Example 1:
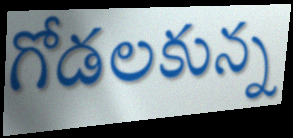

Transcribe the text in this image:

గోడలకున్న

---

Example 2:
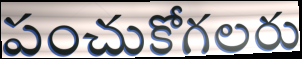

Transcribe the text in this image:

పంచుకోగలరు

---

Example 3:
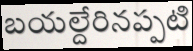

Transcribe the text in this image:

బయల్దేరినప్పటి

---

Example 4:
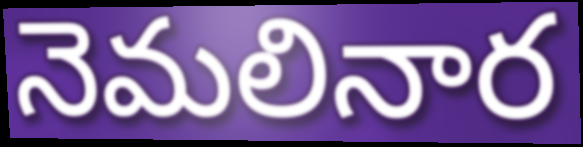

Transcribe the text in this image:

నెమలినార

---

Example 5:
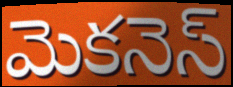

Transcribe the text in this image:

మెకనెస్